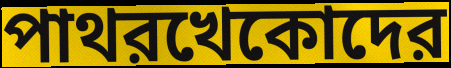
পাথরখেকোদের